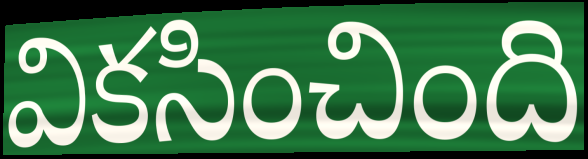
వికసించింది